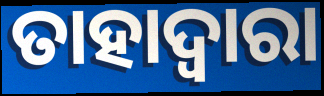
ତାହାଦ୍ୱାରା